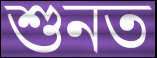
শুনত